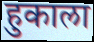
हुकाला